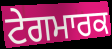
ਟੇਗਮਾਰਕ